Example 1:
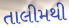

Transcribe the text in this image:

તાલીમથી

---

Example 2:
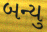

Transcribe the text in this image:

બન્યુ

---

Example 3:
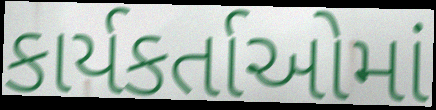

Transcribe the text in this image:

કાર્યકર્તાઓમાં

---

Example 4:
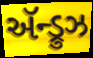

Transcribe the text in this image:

ઍન્ડ્રુઝ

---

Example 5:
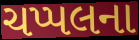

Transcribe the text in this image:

ચપ્પલના